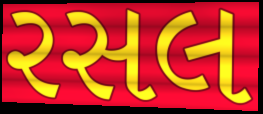
રસલ